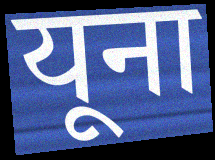
यूना